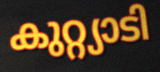
കുറ്റ്യാടി